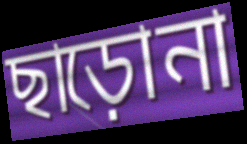
ছাড়োনা